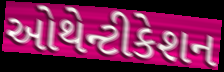
ઓથેન્ટીકેશન